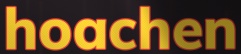
hoachen